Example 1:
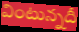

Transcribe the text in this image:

వింటున్నదీ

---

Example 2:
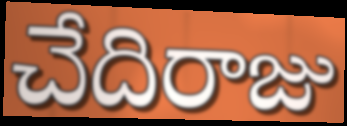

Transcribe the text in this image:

చేదిరాజు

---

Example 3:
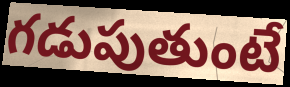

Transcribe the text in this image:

గడుపుతుంటే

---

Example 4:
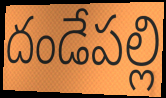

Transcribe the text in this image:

దండేపల్లి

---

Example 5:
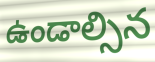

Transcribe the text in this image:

ఉండాల్సిన